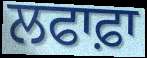
ਲਫਾਫ਼ਾ